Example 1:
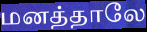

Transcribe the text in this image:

மனத்தாலே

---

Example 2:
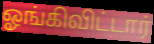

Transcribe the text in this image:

ஓங்கிவிட்டார்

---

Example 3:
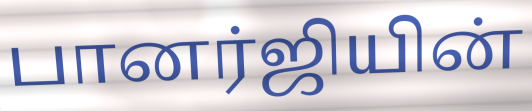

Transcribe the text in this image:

பானர்ஜியின்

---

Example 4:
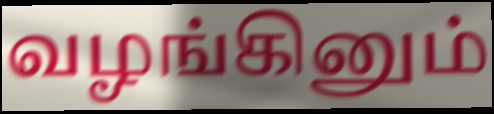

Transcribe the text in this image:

வழங்கினும்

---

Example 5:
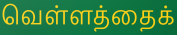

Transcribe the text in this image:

வெள்ளத்தைக்